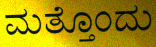
ಮತ್ತೊಂದು